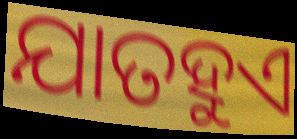
ଯାତହୁଏ